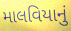
માલવિયાનું